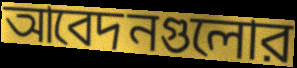
আবেদনগুলোর